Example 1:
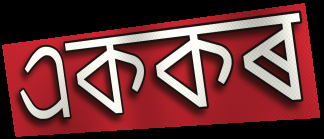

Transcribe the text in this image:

এককৰ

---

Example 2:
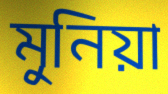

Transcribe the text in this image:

মুনিয়া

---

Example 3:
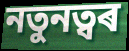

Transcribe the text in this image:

নতুনত্বৰ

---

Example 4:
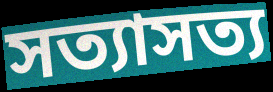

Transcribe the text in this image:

সত্যাসত্য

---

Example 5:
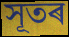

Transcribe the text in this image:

সূতৰ